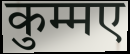
कुम्मए